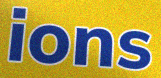
ions